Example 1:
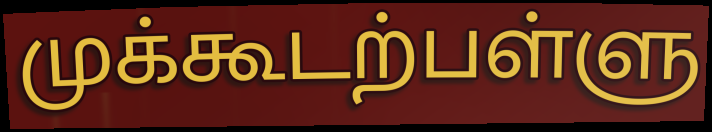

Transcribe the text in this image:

முக்கூடற்பள்ளு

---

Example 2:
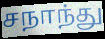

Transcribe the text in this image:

சநாந்து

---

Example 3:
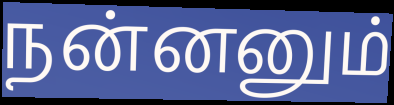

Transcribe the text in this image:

நன்னனும்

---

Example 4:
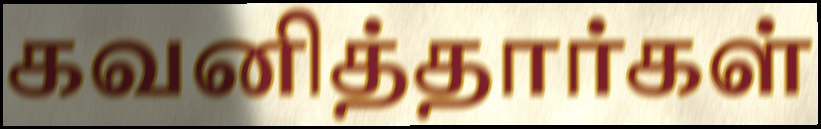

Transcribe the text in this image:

கவனித்தார்கள்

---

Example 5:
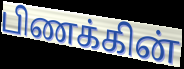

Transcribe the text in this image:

பிணக்கின்